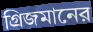
গ্রিজমানের